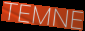
TEMNE